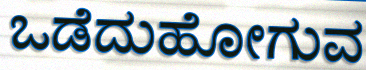
ಒಡೆದುಹೋಗುವ